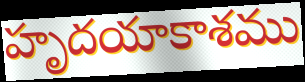
హృదయాకాశము